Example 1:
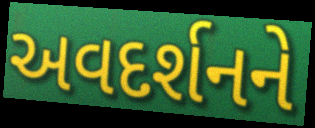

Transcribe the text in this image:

અવદર્શનને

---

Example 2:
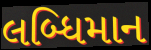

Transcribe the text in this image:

લબ્ધિમાન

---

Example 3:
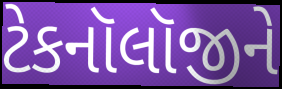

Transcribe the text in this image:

ટેકનૉલૉજીને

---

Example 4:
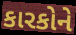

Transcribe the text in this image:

કારકોને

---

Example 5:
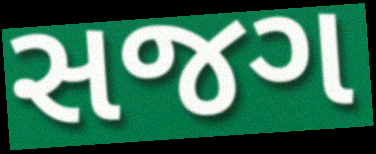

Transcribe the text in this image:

સજગ